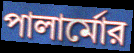
পালার্মোর